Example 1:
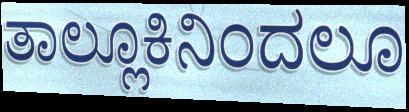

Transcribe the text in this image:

ತಾಲ್ಲೂಕಿನಿಂದಲೂ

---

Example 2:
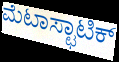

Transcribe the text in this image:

ಮೆಟಾಸ್ಟಾಟಿಕ್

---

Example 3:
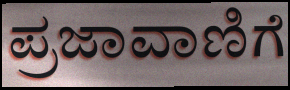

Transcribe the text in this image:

ಪ್ರಜಾವಾಣಿಗೆ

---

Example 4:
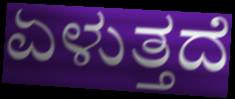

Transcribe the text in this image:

ಏಳುತ್ತದೆ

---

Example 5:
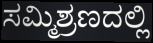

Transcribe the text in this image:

ಸಮ್ಮಿಶ್ರಣದಲ್ಲಿ